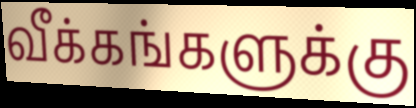
வீக்கங்களுக்கு